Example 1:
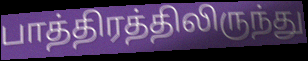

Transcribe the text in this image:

பாத்திரத்திலிருந்து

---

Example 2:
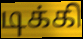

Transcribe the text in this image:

டிக்கி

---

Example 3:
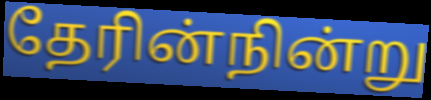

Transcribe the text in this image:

தேரின்நின்று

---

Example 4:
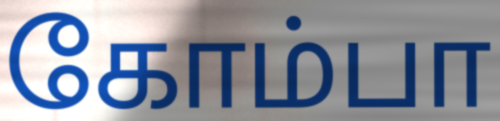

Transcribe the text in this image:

கோம்பா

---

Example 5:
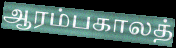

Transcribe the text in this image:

ஆரம்பகாலத்